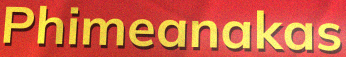
Phimeanakas